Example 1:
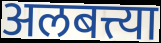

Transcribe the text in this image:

अलबत्त्या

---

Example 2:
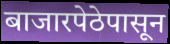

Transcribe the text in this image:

बाजारपेठेपासून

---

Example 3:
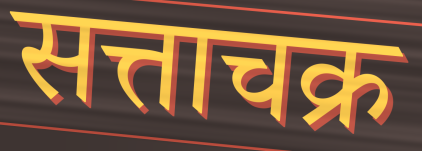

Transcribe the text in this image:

सत्ताचक्र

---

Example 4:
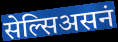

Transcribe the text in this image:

सेल्सिअसनं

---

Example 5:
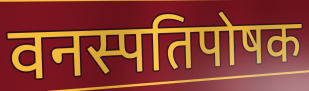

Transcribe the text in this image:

वनस्पतिपोषक